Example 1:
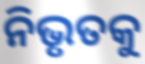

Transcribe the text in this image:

ନିଭୃତକୁ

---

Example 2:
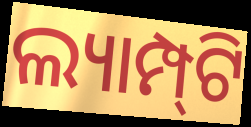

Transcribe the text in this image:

ଲ୍ୟାମ୍ପ୍‍ଟି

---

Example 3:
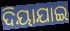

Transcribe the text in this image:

ଦିୟାଯାଇ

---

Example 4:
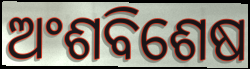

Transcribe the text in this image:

ଅଂଶବିଶେଷ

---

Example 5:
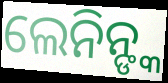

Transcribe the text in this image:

ଲେନିନ୍ଙ୍କ